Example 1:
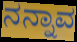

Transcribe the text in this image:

ನನ್ನಾವ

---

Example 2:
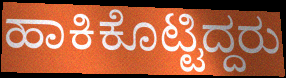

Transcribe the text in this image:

ಹಾಕಿಕೊಟ್ಟಿದ್ದರು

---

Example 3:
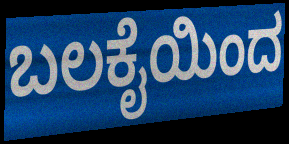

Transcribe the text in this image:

ಬಲಕೈಯಿಂದ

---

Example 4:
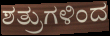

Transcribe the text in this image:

ಶತ್ರುಗಳಿಂದ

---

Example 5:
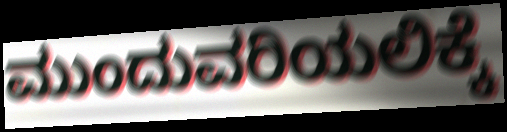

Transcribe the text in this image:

ಮುಂದುವರಿಯಲಿಕ್ಕೆ